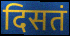
दिसतं